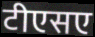
टीएसए